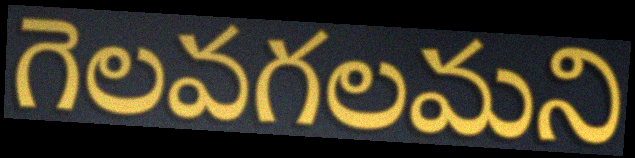
గెలవగలమని